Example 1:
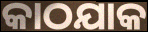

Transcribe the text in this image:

କାଠଯାକ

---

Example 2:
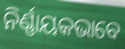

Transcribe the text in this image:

ନିର୍ଣ୍ଣାୟକଭାବେ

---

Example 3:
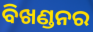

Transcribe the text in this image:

ବିଖଣ୍ଡନର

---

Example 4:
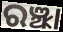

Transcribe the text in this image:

ରଞ୍ଝା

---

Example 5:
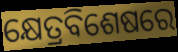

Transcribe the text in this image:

କ୍ଷେତ୍ରବିଶେଷରେ